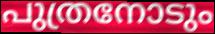
പുത്രനോടും